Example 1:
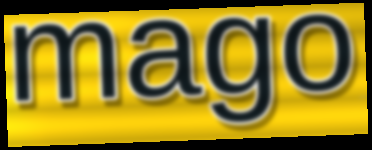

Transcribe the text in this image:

mago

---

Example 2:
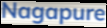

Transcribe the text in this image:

Nagapure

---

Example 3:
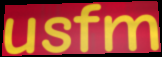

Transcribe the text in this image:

usfm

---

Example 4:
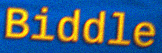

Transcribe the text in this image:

Biddle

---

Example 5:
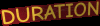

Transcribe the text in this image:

DURATION